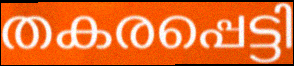
തകരപ്പെട്ടി